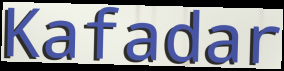
Kafadar